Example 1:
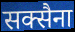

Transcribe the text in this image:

सक्सैना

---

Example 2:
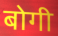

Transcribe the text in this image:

बोगी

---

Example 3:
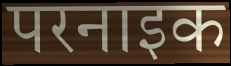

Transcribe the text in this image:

परनाइक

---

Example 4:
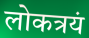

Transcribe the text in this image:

लोकत्रयं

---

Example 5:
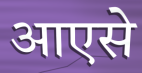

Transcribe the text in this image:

आएसे